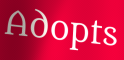
Adopts